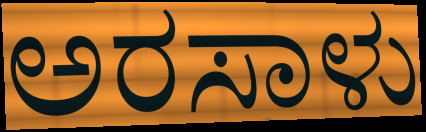
ಅರಸಾಳು